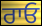
ਰਾਓ